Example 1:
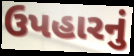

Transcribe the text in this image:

ઉપહારનું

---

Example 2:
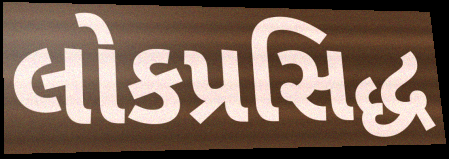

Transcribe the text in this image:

લોકપ્રસિદ્ધ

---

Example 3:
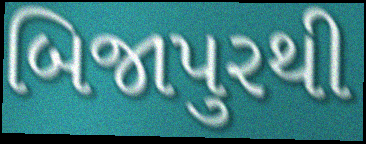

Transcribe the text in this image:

બિજાપુરથી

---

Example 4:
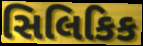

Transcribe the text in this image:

સિલિકિક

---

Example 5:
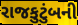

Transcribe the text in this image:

રાજકુટુંબની